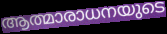
ആത്മാരാധനയുടെ